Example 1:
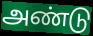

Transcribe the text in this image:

அண்டு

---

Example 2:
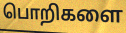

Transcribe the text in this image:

பொறிகளை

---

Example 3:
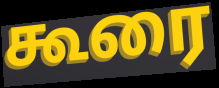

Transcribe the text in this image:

கூரை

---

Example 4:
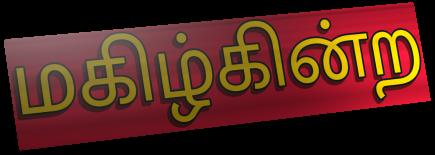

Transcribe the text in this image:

மகிழ்கின்ற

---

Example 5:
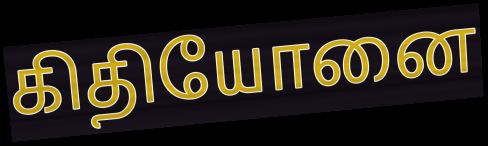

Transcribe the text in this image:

கிதியோனை